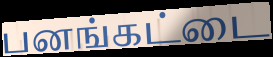
பனங்கட்டை